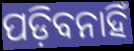
ପଡ଼ିବନାହିଁ